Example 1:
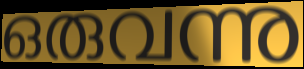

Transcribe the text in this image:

ഒരുവന്നു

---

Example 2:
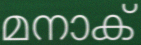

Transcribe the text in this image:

മനാക്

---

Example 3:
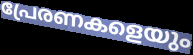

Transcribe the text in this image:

പ്രേരണകളെയും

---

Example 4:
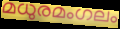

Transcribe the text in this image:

മധുരമംഗലം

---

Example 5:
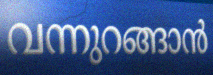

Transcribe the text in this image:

വന്നുറങ്ങാൻ